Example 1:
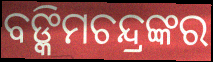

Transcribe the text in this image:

ବଙ୍କିମଚନ୍ଦ୍ରଙ୍କର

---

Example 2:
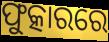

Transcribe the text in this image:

ଫୁତ୍କାରରେ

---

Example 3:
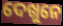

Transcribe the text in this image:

ଦେଖୁନେ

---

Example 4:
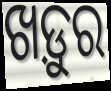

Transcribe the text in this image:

ଖଡ଼ୁର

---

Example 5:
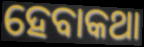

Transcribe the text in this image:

ହେବାକଥା